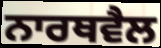
ਨਾਰਥਵੈਲ